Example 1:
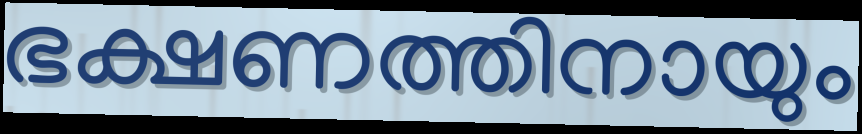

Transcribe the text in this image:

ഭക്ഷണത്തിനായും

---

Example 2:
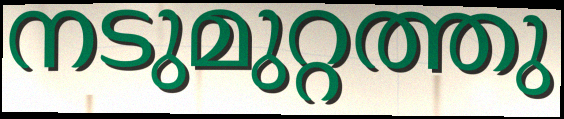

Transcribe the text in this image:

നടുമുറ്റത്തു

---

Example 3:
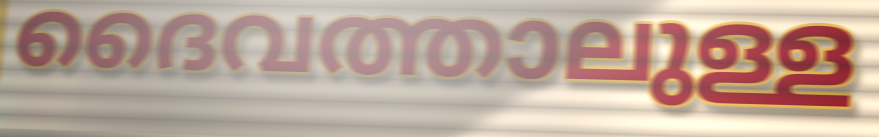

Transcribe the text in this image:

ദൈവത്താലുള്ള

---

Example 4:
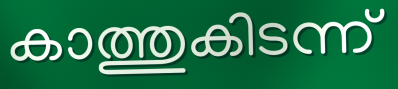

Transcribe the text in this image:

കാത്തുകിടന്ന്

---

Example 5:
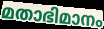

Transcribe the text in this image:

മതാഭിമാനം